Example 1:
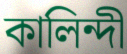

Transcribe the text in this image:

কালিন্দী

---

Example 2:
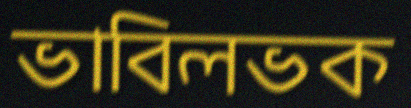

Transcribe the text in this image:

ভাবিলভক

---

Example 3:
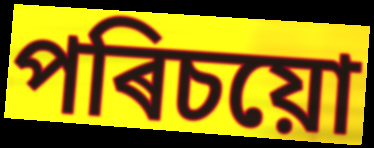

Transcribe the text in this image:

পৰিচয়ো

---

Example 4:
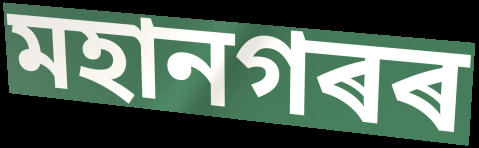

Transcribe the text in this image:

মহানগৰৰ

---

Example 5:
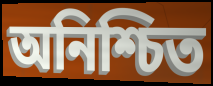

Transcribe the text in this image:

অনিশ্চিত